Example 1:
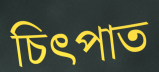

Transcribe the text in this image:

চিৎপাত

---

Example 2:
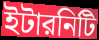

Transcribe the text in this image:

ইটারনিটি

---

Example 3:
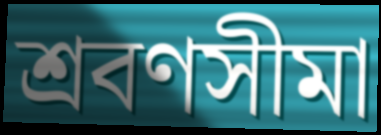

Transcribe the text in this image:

শ্রবণসীমা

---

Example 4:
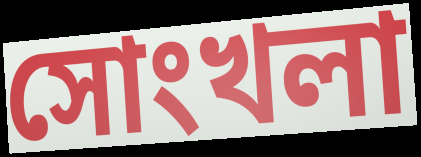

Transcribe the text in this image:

সোংখলা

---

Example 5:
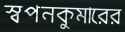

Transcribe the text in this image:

স্বপনকুমারের